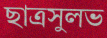
ছাত্রসুলভ